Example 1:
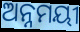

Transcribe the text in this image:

ଅନ୍ନମୟୀ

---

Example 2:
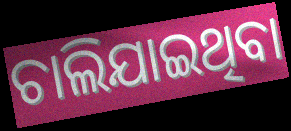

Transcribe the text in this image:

ଚାଲିଯାଇଥିବା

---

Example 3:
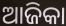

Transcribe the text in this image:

ଆଜିକା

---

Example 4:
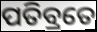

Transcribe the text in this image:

ପତିବ୍ରତେ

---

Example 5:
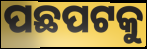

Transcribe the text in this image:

ପଛପଟକୁ